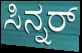
ಸಿನ್ನರ್